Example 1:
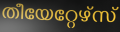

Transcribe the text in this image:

തീയേറ്റേഴ്സ്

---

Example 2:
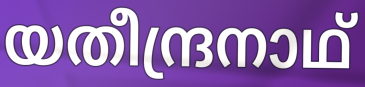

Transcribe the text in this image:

യതീന്ദ്രനാഥ്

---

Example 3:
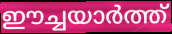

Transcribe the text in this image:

ഈച്ചയാർത്ത്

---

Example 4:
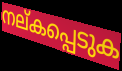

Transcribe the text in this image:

നല്കപ്പെടുക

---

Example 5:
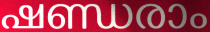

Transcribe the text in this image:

ഷണ്ഡരാം